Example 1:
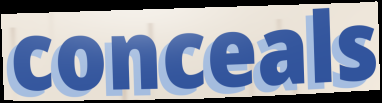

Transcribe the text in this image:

conceals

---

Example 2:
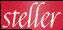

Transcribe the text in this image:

steller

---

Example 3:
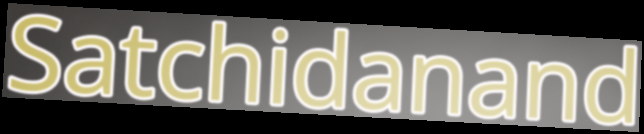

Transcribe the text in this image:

Satchidanand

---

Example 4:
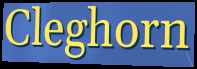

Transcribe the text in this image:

Cleghorn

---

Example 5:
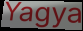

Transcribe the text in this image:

Yagya